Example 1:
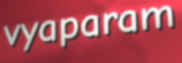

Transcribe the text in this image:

vyaparam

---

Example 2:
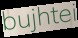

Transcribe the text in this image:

bujhtei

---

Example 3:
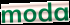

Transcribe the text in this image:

moda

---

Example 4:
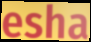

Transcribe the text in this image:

esha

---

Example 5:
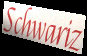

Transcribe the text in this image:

Schwariz